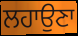
ਲਹਾਉਣਾ